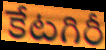
కేటగిరీ